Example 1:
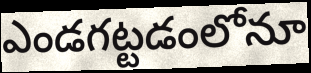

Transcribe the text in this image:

ఎండగట్టడంలోనూ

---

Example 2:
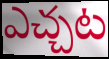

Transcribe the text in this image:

ఎచ్చట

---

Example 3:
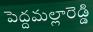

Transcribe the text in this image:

పెద్దమల్లారెడ్డి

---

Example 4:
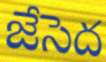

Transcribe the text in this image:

జేసెద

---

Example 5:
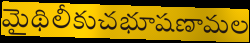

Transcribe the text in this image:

మైథిలీకుచభూషణామల